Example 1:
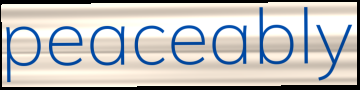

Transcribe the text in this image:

peaceably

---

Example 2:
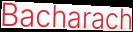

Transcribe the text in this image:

Bacharach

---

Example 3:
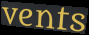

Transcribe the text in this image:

vents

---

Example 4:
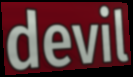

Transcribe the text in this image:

devil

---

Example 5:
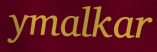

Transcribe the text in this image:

ymalkar